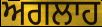
ਅਗਲਾਹ